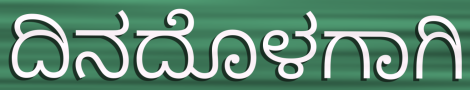
ದಿನದೊಳಗಾಗಿ